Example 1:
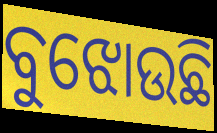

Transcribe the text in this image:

ବୁଝୋଉଛି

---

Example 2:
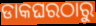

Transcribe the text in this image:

ଡାକଘରଠାରୁ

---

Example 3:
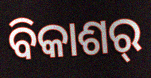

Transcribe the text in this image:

ବିକାଶର୍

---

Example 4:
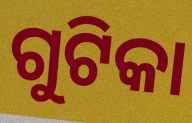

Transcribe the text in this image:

ଗୁଟିକା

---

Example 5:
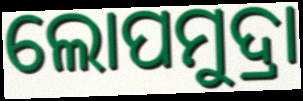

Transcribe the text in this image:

ଲୋପମୁଦ୍ରା